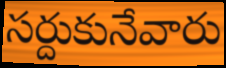
సర్దుకునేవారు